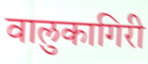
वालुकागिरी